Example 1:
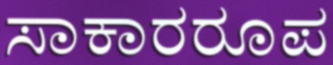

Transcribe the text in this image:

ಸಾಕಾರರೂಪ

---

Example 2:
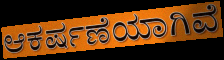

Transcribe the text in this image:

ಆಕರ್ಷಣೆಯಾಗಿವೆ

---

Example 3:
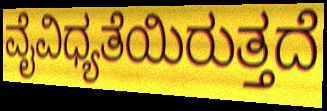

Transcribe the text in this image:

ವೈವಿಧ್ಯತೆಯಿರುತ್ತದೆ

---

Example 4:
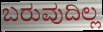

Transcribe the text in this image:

ಬರುವುದಿಲ್ಲ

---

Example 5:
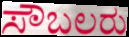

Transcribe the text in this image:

ಸೌಬಲರು